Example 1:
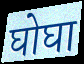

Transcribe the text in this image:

घोघा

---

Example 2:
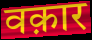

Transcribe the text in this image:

वक़ार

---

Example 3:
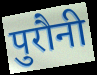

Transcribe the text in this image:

पुरौनी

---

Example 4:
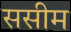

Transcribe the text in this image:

ससीम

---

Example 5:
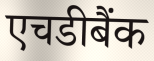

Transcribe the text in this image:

एचडीबैंक